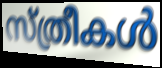
സ്ത്രീകൾ